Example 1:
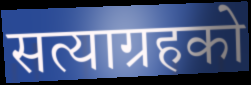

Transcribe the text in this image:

सत्याग्रहको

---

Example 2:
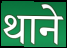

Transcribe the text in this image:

थाने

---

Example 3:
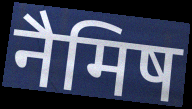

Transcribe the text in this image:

नैमिष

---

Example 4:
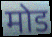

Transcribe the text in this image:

मोड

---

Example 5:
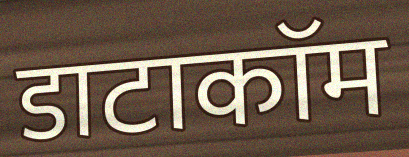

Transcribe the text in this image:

डाटाकॉम